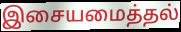
இசையமைத்தல்